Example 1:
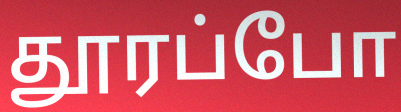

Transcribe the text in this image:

தூரப்போ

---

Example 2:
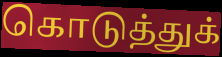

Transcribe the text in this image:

கொடுத்துக்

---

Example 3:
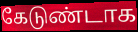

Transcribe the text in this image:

கேடுண்டாக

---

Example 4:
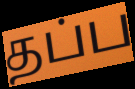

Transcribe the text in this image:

தப்ப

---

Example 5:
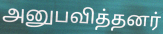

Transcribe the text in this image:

அனுபவித்தனர்